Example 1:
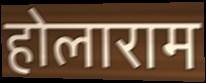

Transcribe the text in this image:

होलाराम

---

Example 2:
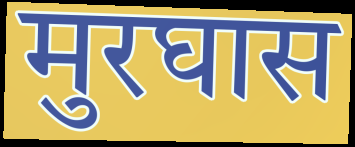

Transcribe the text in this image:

मुरघास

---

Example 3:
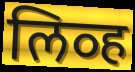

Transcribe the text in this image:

लिव्ह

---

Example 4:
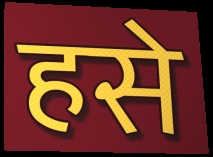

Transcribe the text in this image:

हसे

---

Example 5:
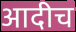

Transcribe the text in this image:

आदीच